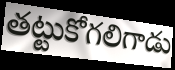
తట్టుకోగలిగాడు